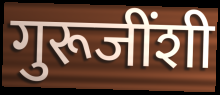
गुरूजींशी